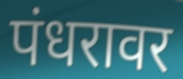
पंधरावर